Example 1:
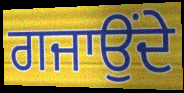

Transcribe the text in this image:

ਗਜਾਉਂਦੇ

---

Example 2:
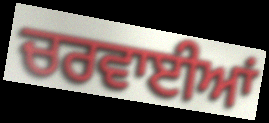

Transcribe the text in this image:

ਚਰਵਾਈਆਂ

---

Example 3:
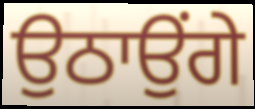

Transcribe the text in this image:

ਉਠਾਉਂਗੇ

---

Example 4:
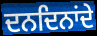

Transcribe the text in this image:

ਦਨਦਿਨਾਂਦੇ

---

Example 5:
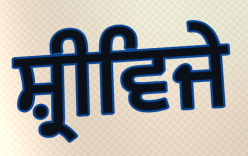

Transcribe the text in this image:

ਸ਼੍ਰੀਵਿਜੇ